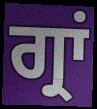
ਗ੍ਰਾਂ